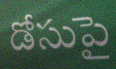
డోసుపై